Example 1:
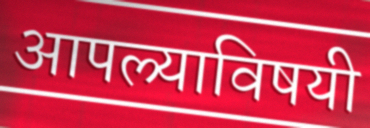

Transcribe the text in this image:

आपल्याविषयी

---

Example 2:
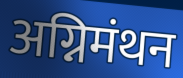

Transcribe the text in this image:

अग्निमंथन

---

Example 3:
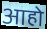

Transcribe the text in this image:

आहो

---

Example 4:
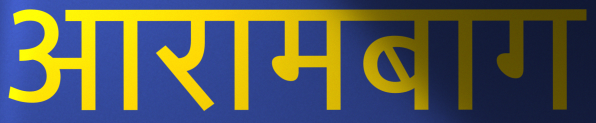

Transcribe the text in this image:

आरामबाग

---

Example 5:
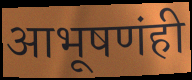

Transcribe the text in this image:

आभूषणंही